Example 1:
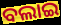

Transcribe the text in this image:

ବଲାଇ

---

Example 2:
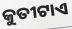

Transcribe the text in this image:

କୁତୀଟାଏ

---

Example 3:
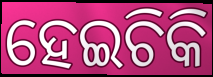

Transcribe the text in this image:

ହେଇଚିକି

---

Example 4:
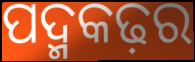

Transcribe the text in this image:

ପଦ୍ମକଢ଼ର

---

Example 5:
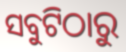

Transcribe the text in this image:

ସବୁଟିଠାରୁ